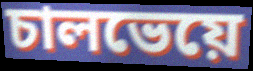
চালভেয়ে